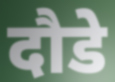
दौडे